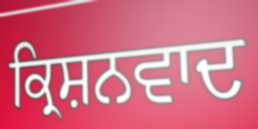
ਕ੍ਰਿਸ਼ਨਵਾਦ